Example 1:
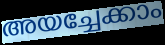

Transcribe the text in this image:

അയച്ചേക്കാം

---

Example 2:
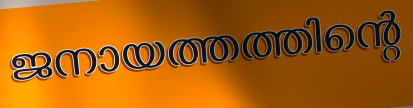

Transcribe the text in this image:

ജനായത്തത്തിന്റെ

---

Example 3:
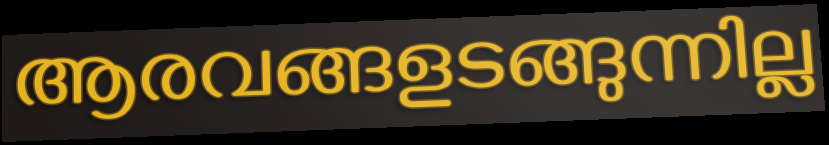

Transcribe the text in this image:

ആരവങ്ങളടങ്ങുന്നില്ല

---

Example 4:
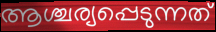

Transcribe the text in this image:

ആശ്ചര്യപ്പെടുന്നത്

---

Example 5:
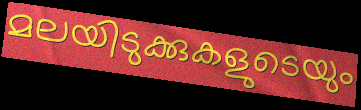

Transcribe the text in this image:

മലയിടുക്കുകളുടെയും